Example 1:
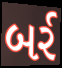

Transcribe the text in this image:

બર્ર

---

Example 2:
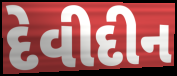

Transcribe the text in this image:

દેવીદીન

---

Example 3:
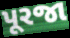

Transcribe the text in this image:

પૂરજા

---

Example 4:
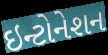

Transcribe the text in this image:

ઇન્ટોનેશન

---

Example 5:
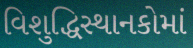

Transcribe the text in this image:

વિશુદ્ધિસ્થાનકોમાં